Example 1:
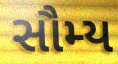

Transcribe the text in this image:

સૌમ્ય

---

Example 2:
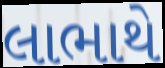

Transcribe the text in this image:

લાભાથે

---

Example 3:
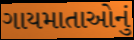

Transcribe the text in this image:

ગાયમાતાઓનું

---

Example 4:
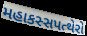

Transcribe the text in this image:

મહાકસ્સપત્થેરો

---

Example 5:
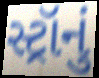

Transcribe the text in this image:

સ્ટ્રૉનું